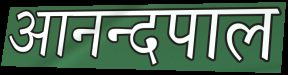
आनन्दपाल